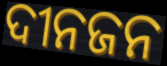
ଦୀନଜନ